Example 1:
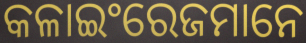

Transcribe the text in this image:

କଳାଇଂରେଜମାନେ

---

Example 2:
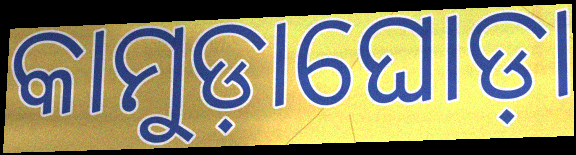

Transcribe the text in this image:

କାମୁଡ଼ାଘୋଡ଼ା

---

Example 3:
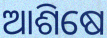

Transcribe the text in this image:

ଆଶିଷେ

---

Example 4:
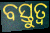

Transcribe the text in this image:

ବସ୍ତୁତ୍ୱ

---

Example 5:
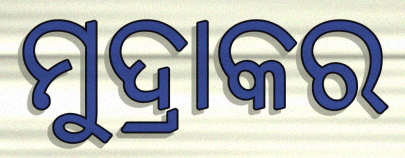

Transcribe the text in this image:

ମୁଦ୍ରାକର